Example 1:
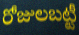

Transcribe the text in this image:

రోజులబట్టీ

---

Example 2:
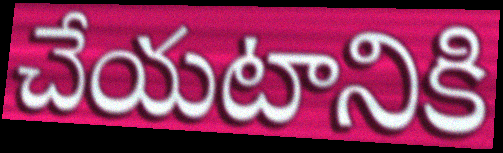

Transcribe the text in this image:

చేయటానికి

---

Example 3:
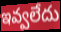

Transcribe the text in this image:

ఇవ్వలేదు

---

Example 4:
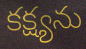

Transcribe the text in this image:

కక్ష్యను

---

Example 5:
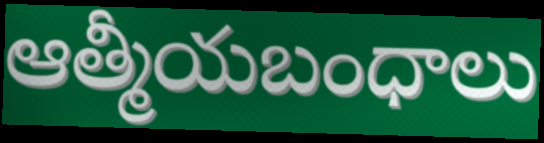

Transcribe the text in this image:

ఆత్మీయబంధాలు